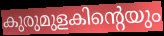
കുരുമുളകിന്റെയും